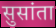
सुसांता